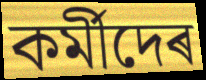
কৰ্মীদেৰ